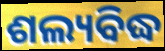
ଶଲ୍ୟବିଦ୍ଧ